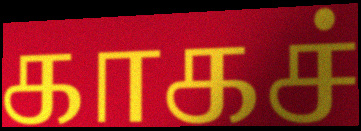
காகச்